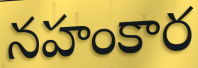
నహంకార